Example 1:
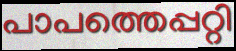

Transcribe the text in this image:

പാപത്തെപ്പറ്റി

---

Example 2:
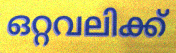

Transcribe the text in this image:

ഒറ്റവലിക്ക്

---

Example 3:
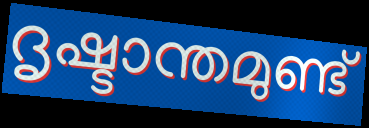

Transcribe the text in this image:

ദൃഷ്ടാന്തമുണ്ട്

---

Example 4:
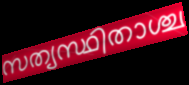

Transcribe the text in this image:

സത്യസ്ഥിതാശ്ച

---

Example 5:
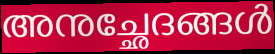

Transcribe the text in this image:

അനുച്ഛേദങ്ങൾ